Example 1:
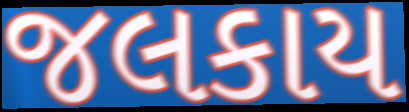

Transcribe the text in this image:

જલકાય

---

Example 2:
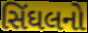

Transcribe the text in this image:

સિંઘલનો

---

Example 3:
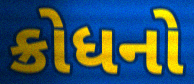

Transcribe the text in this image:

ક્રોધનો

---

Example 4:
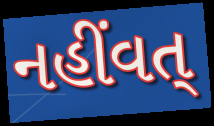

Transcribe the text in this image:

નહીંવત્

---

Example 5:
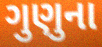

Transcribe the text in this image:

ગુણુના